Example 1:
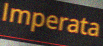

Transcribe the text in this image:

Imperata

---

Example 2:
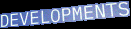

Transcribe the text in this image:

DEVELOPMENTS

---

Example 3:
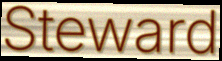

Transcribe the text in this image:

Steward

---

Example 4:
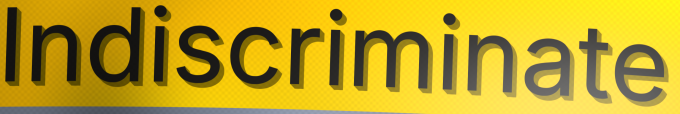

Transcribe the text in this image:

Indiscriminate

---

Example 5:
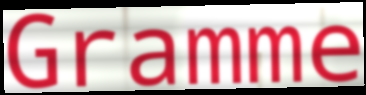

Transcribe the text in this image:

Gramme